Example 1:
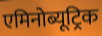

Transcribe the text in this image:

एमिनोब्यूट्रिक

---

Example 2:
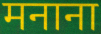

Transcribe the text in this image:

मनाना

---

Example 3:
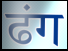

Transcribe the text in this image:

ढंग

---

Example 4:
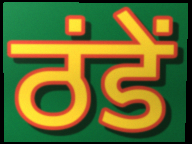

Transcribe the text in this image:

ठंडें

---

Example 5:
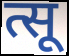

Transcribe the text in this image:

त्सू